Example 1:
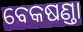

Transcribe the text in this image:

ବେକଷଣ୍ଡା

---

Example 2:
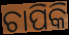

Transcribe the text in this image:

ଚାପିକି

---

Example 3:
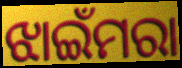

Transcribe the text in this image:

ଝାଇଁମରା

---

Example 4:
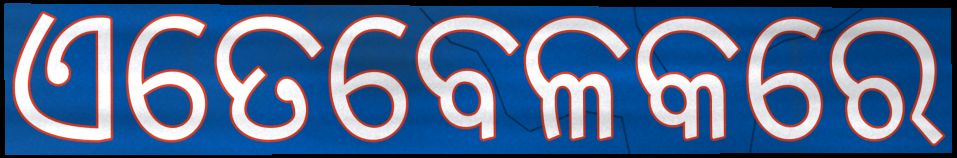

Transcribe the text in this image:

ଏତେବେଳକରେ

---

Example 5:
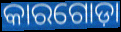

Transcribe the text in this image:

କାରଗୋଡ଼ା